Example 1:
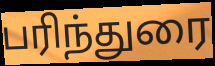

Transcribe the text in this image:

பரிந்துரை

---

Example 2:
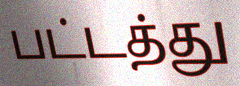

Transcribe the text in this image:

பட்டத்து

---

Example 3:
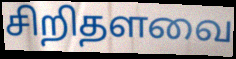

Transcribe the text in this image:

சிறிதளவை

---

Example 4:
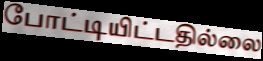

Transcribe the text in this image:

போட்டியிட்டதில்லை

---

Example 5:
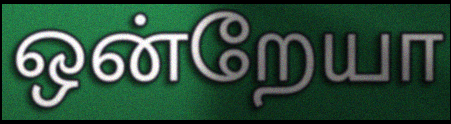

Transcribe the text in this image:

ஒன்றேயா